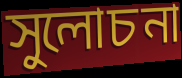
সুলোচনা